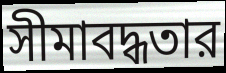
সীমাবদ্ধতার